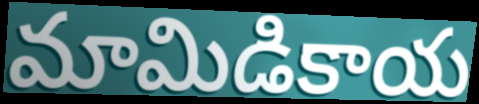
మామిడికాయ